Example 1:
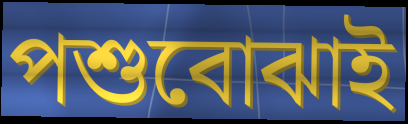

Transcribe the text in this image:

পশুবোঝাই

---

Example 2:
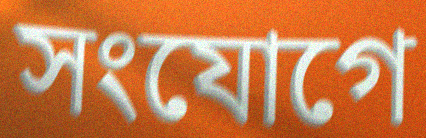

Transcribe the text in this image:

সংযোগে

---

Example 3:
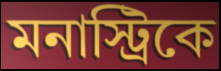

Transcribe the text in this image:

মনাস্ট্রিকে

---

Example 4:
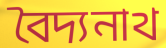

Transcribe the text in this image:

বৈদ্যনাথ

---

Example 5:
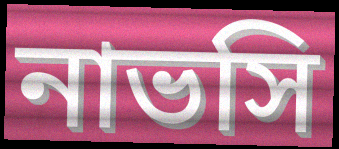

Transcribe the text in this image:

নাভসি